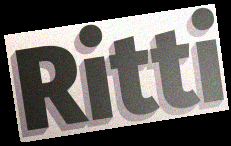
Ritti